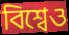
বিশ্বেও